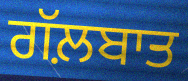
ਗੱਲ਼ਬਾਤ